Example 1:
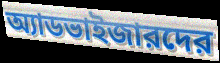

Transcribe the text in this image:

অ্যাডভাইজারদের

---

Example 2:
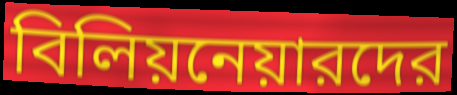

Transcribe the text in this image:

বিলিয়নেয়ারদের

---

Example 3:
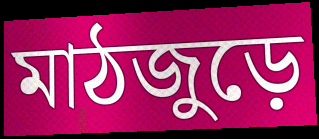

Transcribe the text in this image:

মাঠজুড়ে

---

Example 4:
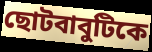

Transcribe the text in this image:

ছোটবাবুটিকে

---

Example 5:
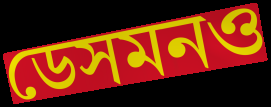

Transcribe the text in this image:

ডেসমনও